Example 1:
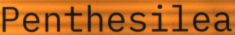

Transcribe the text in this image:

Penthesilea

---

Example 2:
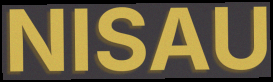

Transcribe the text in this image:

NISAU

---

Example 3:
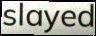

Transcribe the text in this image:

slayed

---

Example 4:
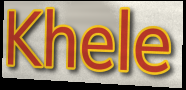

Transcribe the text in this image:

Khele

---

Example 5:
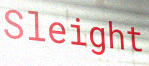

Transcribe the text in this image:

Sleight